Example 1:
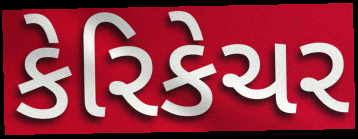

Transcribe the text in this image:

કેરિકેચર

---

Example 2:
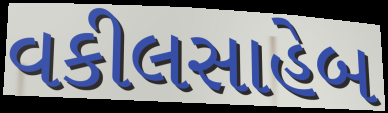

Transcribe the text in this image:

વકીલસાહેબ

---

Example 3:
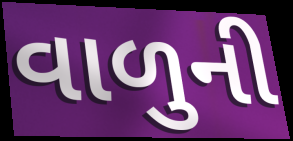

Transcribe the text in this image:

વાળુની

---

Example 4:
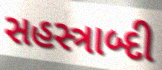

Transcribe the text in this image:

સહસ્ત્રાબ્દી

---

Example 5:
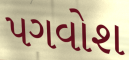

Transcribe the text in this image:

પગવોશ